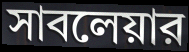
সাবলেয়ার